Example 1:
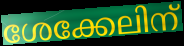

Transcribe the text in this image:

ശേക്കേലിന്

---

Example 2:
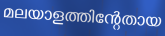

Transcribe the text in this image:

മലയാളത്തിന്റേതായ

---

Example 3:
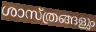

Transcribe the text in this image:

ശാസ്ത്രങ്ങളും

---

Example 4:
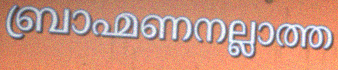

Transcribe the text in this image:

ബ്രാഹ്മണനല്ലാത്ത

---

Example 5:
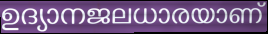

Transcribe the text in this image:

ഉദ്യാനജലധാരയാണ്